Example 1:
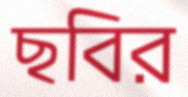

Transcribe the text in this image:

ছবির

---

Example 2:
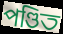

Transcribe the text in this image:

পণ্ডিত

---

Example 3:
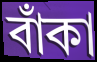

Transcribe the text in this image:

বাঁকা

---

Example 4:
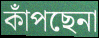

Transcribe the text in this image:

কাঁপছেনা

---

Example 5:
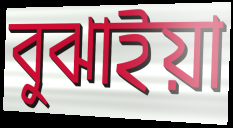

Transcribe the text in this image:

বুঝাইয়া